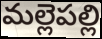
మల్లెపల్లి